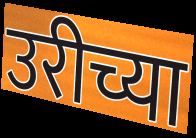
उरीच्या